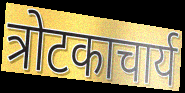
त्रोटकाचार्य